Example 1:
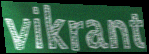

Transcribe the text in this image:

vikrant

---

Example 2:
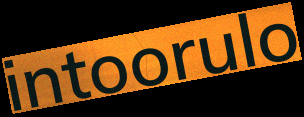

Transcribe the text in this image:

intoorulo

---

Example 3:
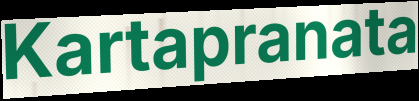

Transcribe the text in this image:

Kartapranata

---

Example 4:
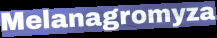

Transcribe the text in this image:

Melanagromyza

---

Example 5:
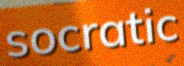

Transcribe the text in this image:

socratic